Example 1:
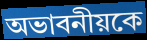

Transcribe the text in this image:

অভাবনীয়কে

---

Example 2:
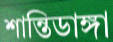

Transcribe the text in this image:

শান্তিডাঙ্গা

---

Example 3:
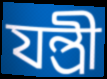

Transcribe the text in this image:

যন্ত্রী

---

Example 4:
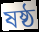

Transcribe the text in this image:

ষষ্ঠ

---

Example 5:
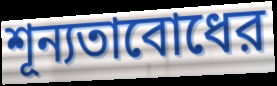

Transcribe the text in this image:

শূন্যতাবোধের